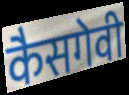
कैसगेवी